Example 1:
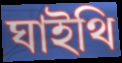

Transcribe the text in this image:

ঘাইথি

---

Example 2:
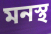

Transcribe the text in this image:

মনস্থ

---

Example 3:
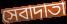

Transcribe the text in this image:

সেবাদাতা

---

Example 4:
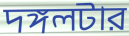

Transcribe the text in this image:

দঙ্গলটার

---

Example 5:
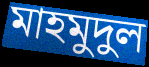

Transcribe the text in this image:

মাহমুদুল